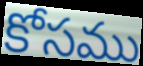
కోసము